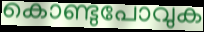
കൊണ്ടുപോവുക